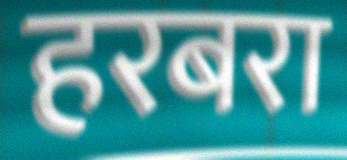
हरबरा